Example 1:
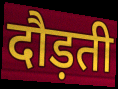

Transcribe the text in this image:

दौड़ती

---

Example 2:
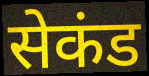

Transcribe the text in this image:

सेकंड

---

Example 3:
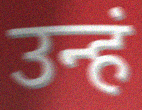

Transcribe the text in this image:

उन्हं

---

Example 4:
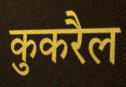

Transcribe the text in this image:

कुकरैल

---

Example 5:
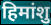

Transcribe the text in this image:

हिमांशु